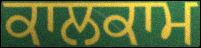
ਕਾਲਕਾਮ